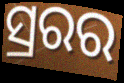
ସ୍ରରର